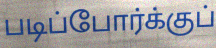
படிப்போர்க்குப்